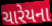
ચારેયના